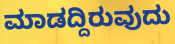
ಮಾಡದ್ದಿರುವುದು